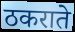
ठकराते